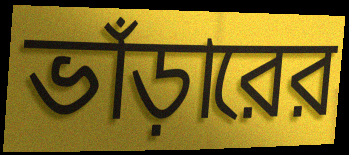
ভাঁড়ারের